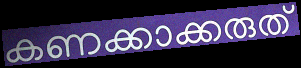
കണക്കാക്കരുത്